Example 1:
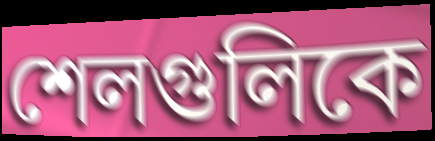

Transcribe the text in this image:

শেলগুলিকে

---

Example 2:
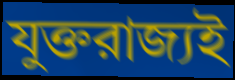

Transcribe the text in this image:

যুক্তরাজ্যই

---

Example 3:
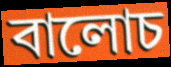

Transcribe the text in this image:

বালোচ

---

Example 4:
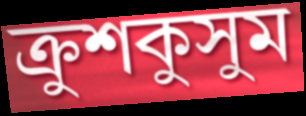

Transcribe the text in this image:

ক্রুশকুসুম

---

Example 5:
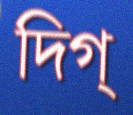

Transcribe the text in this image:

দিগ্